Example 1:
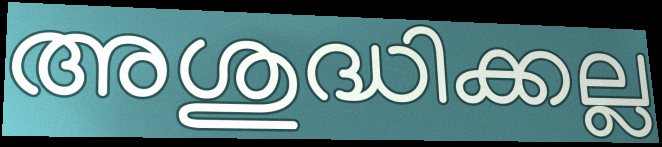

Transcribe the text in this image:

അശുദ്ധിക്കല്ല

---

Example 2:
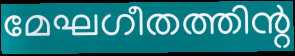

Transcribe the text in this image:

മേഘഗീതത്തിന്റ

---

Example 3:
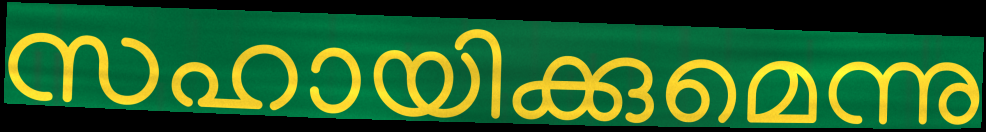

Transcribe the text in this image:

സഹായിക്കുമെന്നു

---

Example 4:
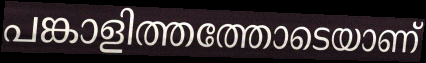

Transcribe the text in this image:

പങ്കാളിത്തത്തോടെയാണ്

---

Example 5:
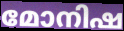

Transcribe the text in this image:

മോനിഷ